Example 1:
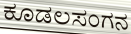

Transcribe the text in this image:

ಕೂಡಲಸಂಗನ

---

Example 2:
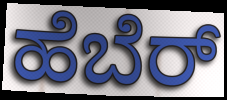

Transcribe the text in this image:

ಹೆಬೆರ್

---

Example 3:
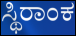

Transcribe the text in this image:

ಸ್ಥಿರಾಂಕ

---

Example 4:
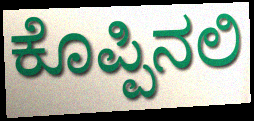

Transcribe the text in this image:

ಕೊಪ್ಪಿನಲಿ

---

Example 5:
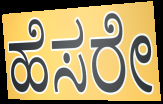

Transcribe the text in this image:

ಹೆಸರೇ